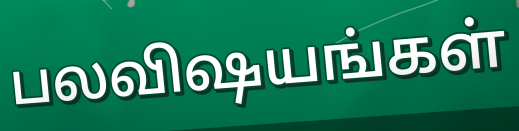
பலவிஷயங்கள்